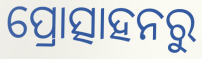
ପ୍ରୋତ୍ସାହନରୁ